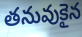
తనువుకైన